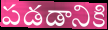
పడడానికి